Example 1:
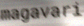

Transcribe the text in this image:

magavari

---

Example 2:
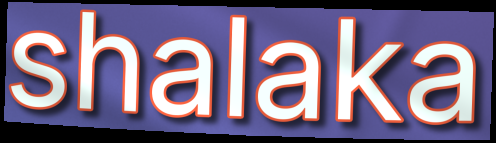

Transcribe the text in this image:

shalaka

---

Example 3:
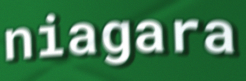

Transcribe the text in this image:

niagara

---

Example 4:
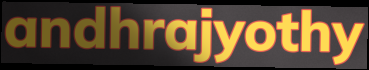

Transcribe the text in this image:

andhrajyothy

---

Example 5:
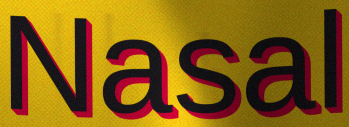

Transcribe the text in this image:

Nasal